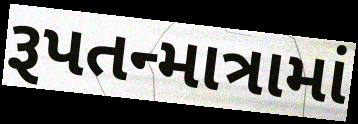
રૂપતન્માત્રામાં